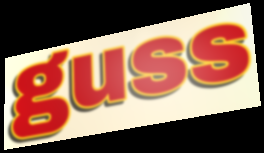
guss